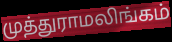
முத்துராமலிங்கம்